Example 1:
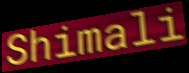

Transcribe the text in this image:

Shimali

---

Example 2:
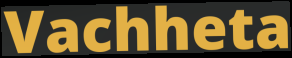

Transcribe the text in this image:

Vachheta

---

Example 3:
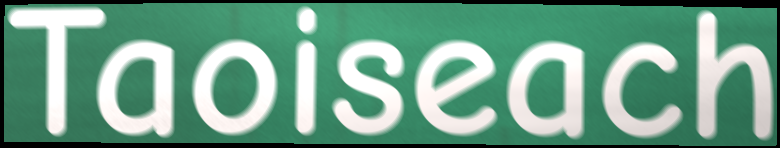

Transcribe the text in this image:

Taoiseach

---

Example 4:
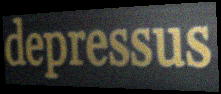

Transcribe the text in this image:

depressus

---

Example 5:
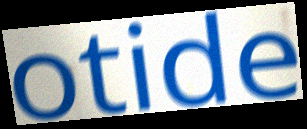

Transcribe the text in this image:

otide